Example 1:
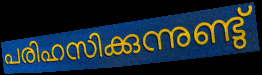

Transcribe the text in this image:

പരിഹസിക്കുന്നുണ്ടു്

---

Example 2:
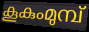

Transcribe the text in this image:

കൂകുംമുമ്പ്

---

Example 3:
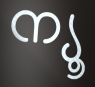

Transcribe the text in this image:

ന്യൂ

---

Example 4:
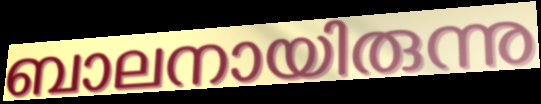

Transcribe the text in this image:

ബാലനായിരുന്നു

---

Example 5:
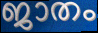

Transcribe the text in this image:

ജാതം